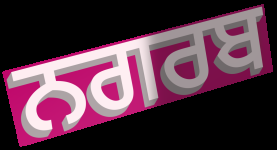
ਨਗਰਬ